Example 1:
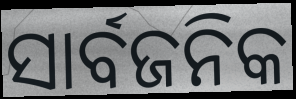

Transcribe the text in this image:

ସାର୍ବଜନିକ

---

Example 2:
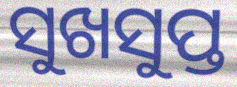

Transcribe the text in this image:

ସୁଖସୁପ୍ତ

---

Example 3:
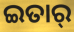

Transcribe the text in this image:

ଇତାର୍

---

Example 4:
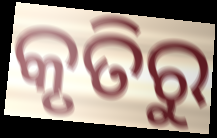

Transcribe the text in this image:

କୃତିରୁ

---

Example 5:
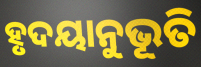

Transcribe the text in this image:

ହୃଦୟାନୁଭୂତି